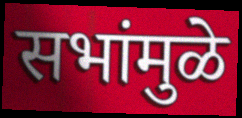
सभांमुळे